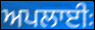
ਅਪਲਾਈਃ